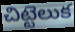
చిట్టెలుక